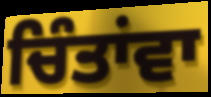
ਚਿੰਤਾਂਵਾ